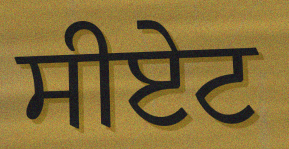
ਸੀਏਟ